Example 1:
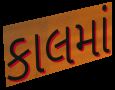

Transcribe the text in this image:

કાલમાં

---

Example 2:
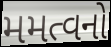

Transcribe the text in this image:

મમત્વનો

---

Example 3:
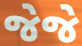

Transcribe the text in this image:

જેજે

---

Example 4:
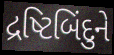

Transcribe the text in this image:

દ્રષ્ટિબિંદુને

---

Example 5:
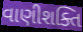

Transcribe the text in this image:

વાણીશક્તિ